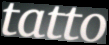
tatto